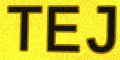
TEJ